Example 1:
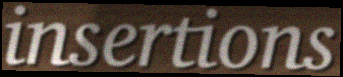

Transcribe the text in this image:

insertions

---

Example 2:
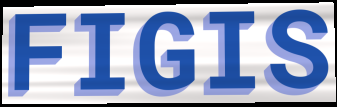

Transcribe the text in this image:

FIGIS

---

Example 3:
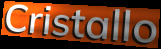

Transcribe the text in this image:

Cristallo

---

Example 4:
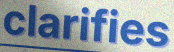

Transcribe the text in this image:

clarifies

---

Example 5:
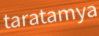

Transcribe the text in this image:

taratamya